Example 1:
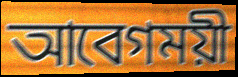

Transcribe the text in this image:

আবেগময়ী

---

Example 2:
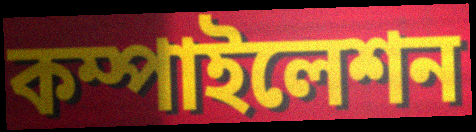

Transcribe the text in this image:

কম্পাইলেশন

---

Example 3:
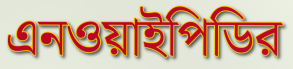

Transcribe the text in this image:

এনওয়াইপিডির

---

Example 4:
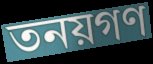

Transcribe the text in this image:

তনয়গণ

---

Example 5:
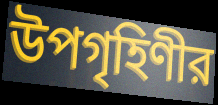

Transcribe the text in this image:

উপগৃহিণীর